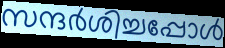
സന്ദർശിച്ചപ്പോൾ